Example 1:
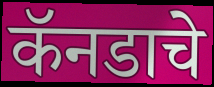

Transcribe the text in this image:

कॅनडाचे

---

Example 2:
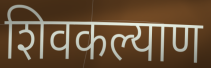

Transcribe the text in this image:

शिवकल्याण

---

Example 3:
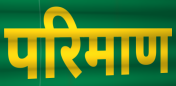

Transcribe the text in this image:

परिमाण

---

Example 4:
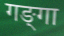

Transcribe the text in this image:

गङ्‍गा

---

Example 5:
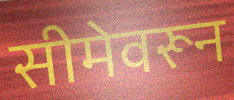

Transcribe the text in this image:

सीमेवरून